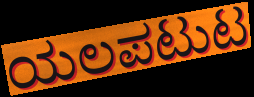
ಯಲಪಟುಟ